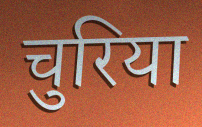
चुरिया